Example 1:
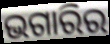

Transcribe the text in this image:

ଭଗାରିର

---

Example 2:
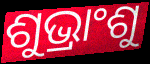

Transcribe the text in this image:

ଶୁଭ୍ରାଂଶୁ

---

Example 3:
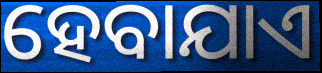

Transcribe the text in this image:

ହେବାଯାଏ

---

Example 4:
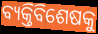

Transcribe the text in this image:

ବ୍ୟକ୍ତିବିଶେଷକୁ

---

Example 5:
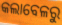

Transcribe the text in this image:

କଲାବେଳରୁ